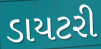
ડાયટરી